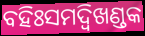
ବହିଃସମଦ୍ୱିଖଣ୍ଡକ